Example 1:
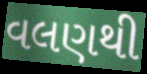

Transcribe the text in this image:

વલણથી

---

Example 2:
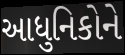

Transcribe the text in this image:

આધુનિકોને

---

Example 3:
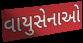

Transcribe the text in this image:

વાયુસેનાઓ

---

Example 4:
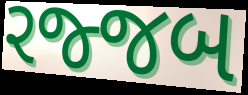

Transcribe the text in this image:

રજ્જબ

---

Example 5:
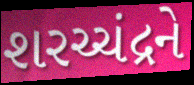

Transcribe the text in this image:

શરચ્ચંદ્રને